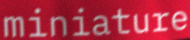
miniature